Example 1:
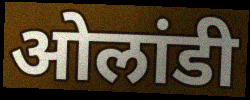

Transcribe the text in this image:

ओलांडी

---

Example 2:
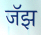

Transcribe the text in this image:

जॅझ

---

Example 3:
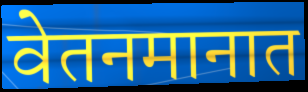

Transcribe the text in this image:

वेतनमानात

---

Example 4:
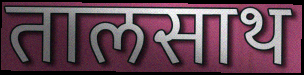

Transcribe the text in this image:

तालसाथ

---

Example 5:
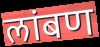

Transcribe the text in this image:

लांबण